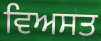
ਵਿਅਸਤ